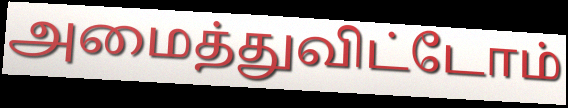
அமைத்துவிட்டோம்